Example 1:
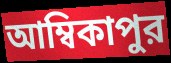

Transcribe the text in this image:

আম্বিকাপুর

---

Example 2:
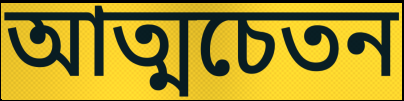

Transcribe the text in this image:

আত্মচেতন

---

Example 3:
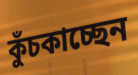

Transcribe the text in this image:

কুঁচকাচ্ছেন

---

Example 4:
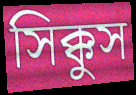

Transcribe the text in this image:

সিক্কুস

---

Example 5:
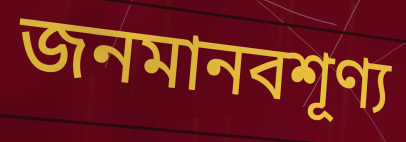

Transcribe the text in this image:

জনমানবশূণ্য